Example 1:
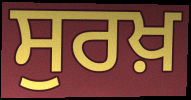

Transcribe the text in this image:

ਸੁਰਖ਼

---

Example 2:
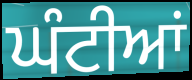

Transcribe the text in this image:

ਘੰਟੀਆਂ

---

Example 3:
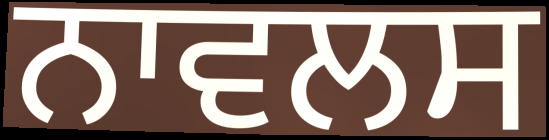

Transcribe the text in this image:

ਨਾਵਲਸ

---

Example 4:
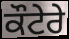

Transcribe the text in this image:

ਕੌਟੇਰੇ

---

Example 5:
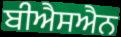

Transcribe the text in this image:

ਬੀਐਸਐਨ